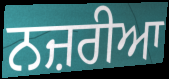
ਨਜ਼ਰੀਆ